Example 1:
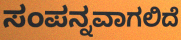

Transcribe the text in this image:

ಸಂಪನ್ನವಾಗಲಿದೆ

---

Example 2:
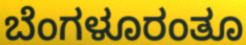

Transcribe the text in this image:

ಬೆಂಗಳೂರಂತೂ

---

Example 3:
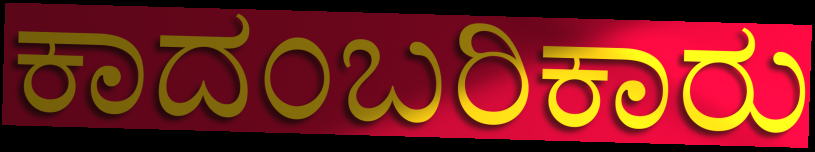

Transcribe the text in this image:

ಕಾದಂಬರಿಕಾರು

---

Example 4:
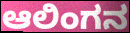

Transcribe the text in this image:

ಆಲಿಂಗನ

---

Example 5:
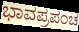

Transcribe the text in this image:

ಭಾವಪ್ರಪಂಚ